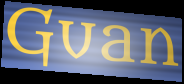
Guan